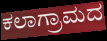
ಕಲಾಗ್ರಾಮದ